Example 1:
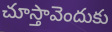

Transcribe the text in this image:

చూస్తావెందుకు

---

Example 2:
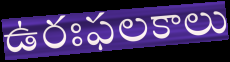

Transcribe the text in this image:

ఉరఃఫలకాలు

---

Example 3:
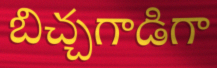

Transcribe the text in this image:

బిచ్చగాడిగా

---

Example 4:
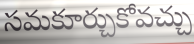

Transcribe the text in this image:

సమకూర్చుకోవచ్చు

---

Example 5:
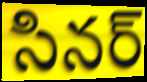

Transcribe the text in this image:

సినర్